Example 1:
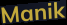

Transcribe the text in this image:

Manik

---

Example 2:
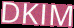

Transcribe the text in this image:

DKIM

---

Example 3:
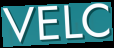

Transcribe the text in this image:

VELC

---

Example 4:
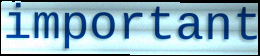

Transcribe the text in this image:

important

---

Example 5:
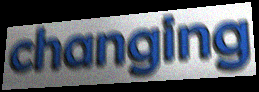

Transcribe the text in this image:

changing